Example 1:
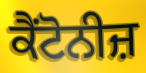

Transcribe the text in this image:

ਕੈਂਟੋਨੀਜ਼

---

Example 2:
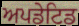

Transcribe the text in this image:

ਅਪਡੇਟਿਡ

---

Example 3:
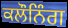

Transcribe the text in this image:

ਕਲੌਨਿੰਗ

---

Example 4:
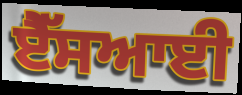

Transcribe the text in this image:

ਏੈੱਸਆਈ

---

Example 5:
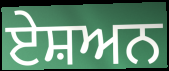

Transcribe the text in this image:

ਏਸ਼ਅਨ